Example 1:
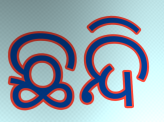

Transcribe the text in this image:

ଛନ୍ଦି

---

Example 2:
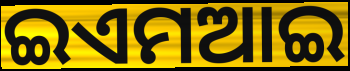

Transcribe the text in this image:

ଇଏମଆଇ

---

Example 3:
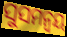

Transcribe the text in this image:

ସୁସମନ୍ୱୟ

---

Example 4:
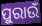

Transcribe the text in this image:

ପୁରାଉଁ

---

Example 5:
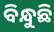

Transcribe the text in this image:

ବିନ୍ଧୁଛି